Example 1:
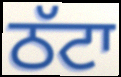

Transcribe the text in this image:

ਠੱਟਾ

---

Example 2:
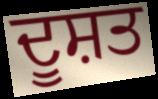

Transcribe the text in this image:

ਦੂਸ਼ਤ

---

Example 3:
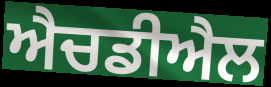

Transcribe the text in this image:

ਐਚਡੀਐਲ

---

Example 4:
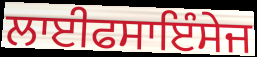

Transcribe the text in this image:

ਲਾਈਫਸਾਇੰਸੇਜ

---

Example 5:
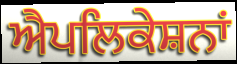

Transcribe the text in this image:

ਐਪਲਿਕੇਸ਼ਨਾਂ